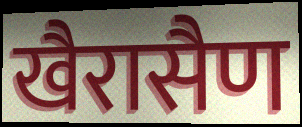
खैरासैण